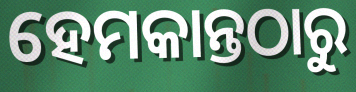
ହେମକାନ୍ତଠାରୁ